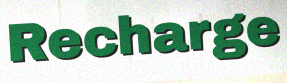
Recharge